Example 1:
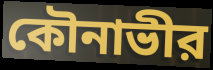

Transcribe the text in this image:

কৌনাভীর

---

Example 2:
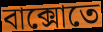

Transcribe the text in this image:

বাক্সোতে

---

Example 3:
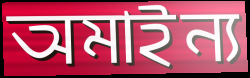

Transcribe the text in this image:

অমাইন্য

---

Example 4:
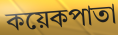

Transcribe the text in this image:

কয়েকপাতা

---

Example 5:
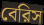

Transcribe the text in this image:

বেরিস